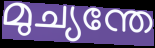
മുച്യന്തേ